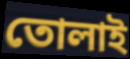
তোলাই